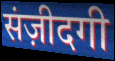
संज़ीदगी